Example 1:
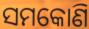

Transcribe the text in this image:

ସମକୋଣି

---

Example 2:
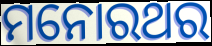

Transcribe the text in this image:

ମନୋରଥର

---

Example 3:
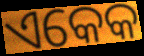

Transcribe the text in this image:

ଏକେକ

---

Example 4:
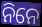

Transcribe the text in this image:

ନିନେ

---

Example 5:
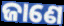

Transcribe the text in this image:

ଜାଣେ